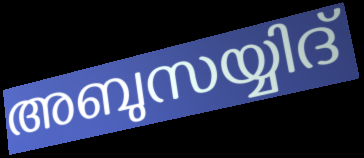
അബുസയ്യിദ്